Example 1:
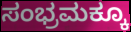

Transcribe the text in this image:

ಸಂಭ್ರಮಕ್ಕೂ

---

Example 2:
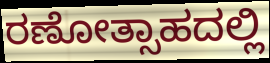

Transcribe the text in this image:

ರಣೋತ್ಸಾಹದಲ್ಲಿ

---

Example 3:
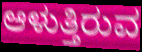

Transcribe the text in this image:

ಆಳುತ್ತಿರುವ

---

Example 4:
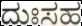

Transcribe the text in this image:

ದುಃಸಹ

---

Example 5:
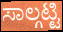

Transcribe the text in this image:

ಸಾಲ್ಗಟ್ಟಿ